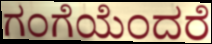
ಗಂಗೆಯೆಂದರೆ